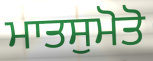
ਮਾਤਸੁਮੋਤੋ